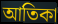
আতিকা